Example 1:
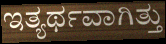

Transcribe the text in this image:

ಇತ್ಯರ್ಥವಾಗಿತ್ತು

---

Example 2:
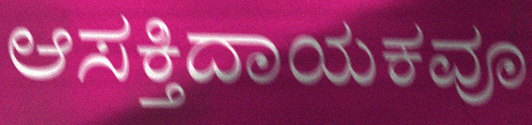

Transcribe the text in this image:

ಆಸಕ್ತಿದಾಯಕವೂ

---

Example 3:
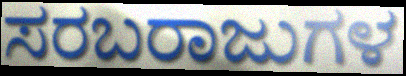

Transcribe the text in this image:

ಸರಬರಾಜುಗಳ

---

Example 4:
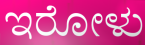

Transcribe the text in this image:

ಇರೋಳು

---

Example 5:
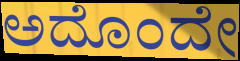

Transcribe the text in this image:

ಅದೊಂದೇ